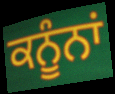
ਕਨੂੰਨਾਂ